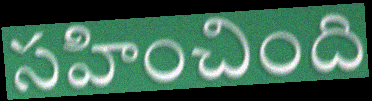
సహించింది